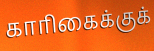
காரிகைக்குக்